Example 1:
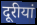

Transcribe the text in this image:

दूरीयां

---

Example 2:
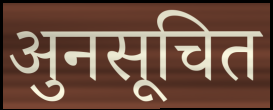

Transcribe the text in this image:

अुनसूचित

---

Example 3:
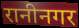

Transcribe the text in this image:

रानीनगर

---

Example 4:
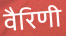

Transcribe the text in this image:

वैरिणी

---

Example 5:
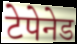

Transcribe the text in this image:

टेपेनेड